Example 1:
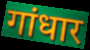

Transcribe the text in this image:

गांधार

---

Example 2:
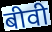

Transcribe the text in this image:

बीवी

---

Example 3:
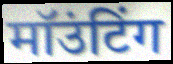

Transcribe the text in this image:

मॉउंटिंग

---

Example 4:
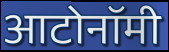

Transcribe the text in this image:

आटोनॉमी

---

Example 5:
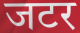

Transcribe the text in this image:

जटर